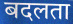
बदलता